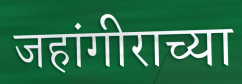
जहांगीराच्या